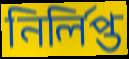
নির্লিপ্ত